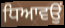
ਧਿਆਵਉਂ